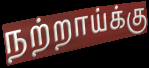
நற்றாய்க்கு